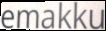
emakku